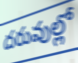
దరువుల్లో